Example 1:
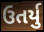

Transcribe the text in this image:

ઉતર્યુ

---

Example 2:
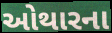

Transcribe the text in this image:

ઓથારના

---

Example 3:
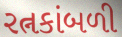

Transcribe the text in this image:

રત્નકાંબળી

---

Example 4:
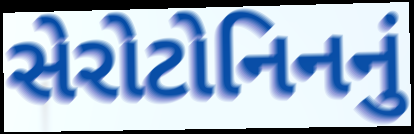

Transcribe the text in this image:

સેરોટોનિનનું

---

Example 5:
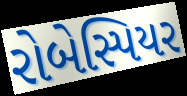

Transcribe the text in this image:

રોબેસ્પિયર